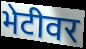
भेटीवर